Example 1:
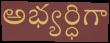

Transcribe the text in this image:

అభ్యర్ధిగా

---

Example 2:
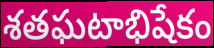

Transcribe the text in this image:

శతఘటాభిషేకం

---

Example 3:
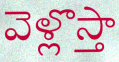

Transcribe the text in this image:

వెళ్లొస్తా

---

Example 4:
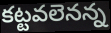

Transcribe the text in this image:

కట్టవలెనన్న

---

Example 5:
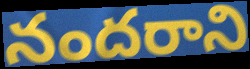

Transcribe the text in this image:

నందరాని